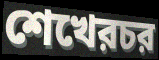
শেখেরচর